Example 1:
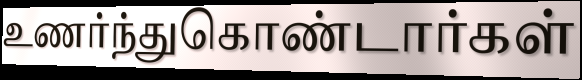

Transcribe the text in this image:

உணர்ந்துகொண்டார்கள்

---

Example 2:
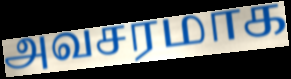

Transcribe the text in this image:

அவசரமாக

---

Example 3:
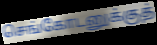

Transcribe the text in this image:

செங்கோடனுக்குத்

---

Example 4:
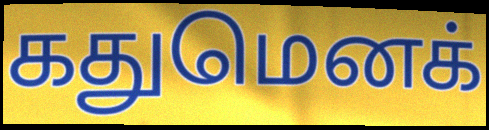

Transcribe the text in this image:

கதுமெனக்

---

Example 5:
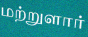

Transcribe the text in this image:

மற்றுளார்